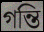
গন্তি